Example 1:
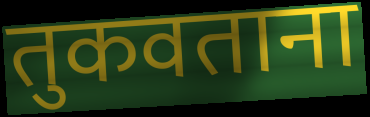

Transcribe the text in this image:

तुकवताना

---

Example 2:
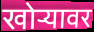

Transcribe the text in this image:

खोऱ्यावर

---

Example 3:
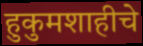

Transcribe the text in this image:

हुकुमशाहीचे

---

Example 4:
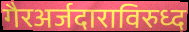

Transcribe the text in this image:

गैरअर्जदाराविरुध्द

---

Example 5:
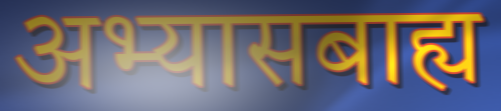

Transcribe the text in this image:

अभ्यासबाह्य